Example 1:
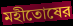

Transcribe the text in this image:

মহীতোষের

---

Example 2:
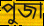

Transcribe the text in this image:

পুজা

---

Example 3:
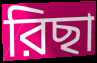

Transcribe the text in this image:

রিছা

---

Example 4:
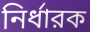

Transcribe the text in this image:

নির্ধারক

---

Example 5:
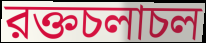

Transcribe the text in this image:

রক্তচলাচল